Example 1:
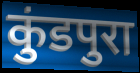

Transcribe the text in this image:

कुंडपुरा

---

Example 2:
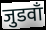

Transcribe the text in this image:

जुडवाँ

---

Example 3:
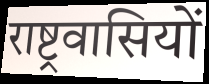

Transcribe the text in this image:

राष्ट्रवासियों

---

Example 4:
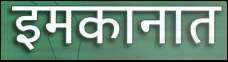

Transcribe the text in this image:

इमकानात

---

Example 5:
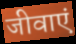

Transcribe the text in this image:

जीवाएं